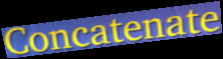
Concatenate